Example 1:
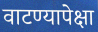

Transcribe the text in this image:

वाटण्यापेक्षा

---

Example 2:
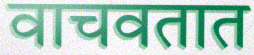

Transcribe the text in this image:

वाचवतात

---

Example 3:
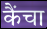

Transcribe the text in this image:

कैंचा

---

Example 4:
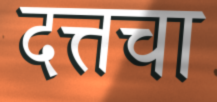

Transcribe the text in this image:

दत्तचा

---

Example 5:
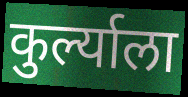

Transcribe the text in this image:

कुर्ल्याला